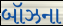
બૉઝના